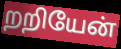
றறியேன்